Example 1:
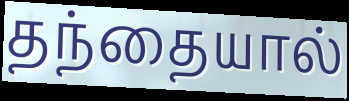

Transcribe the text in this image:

தந்தையால்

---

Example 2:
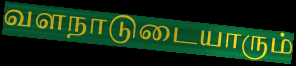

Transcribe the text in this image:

வளநாடுடையாரும்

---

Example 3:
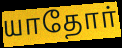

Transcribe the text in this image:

யாதோர்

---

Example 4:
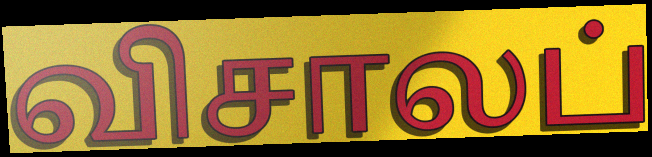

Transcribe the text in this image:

விசாலப்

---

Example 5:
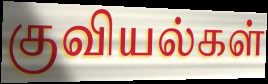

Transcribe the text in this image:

குவியல்கள்